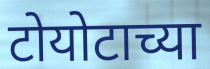
टोयोटाच्या